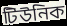
টিউনিক